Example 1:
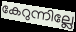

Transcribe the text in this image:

കേറുന്നില്ലേ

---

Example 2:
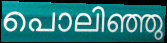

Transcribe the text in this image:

പൊലിഞ്ഞു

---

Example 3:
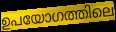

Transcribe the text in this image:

ഉപയോഗത്തിലെ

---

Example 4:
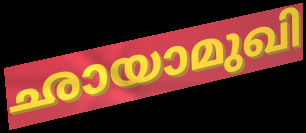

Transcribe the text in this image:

ഛായാമുഖി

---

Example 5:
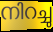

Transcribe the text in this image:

നിറച്ചു